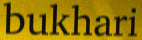
bukhari